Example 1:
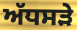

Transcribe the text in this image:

ਅੱਧਸੜੇ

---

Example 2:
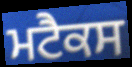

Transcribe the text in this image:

ਮਟੈਕਸ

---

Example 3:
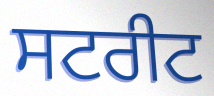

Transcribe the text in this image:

ਸਟਰੀਟ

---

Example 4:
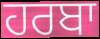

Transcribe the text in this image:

ਹਰਬਾ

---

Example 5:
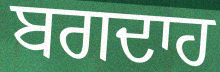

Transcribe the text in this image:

ਬਗਦਾਹ